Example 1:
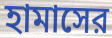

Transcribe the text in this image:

হামাসের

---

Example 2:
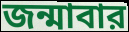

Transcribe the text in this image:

জন্মাবার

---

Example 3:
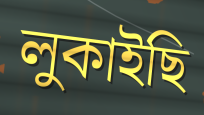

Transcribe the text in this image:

লুকাইছি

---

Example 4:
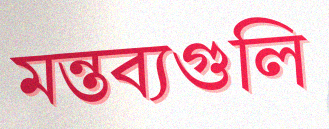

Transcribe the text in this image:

মন্তব্যগুলি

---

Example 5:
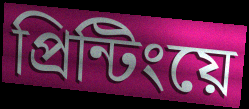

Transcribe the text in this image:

প্রিন্টিংয়ে